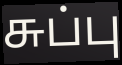
சுப்பு